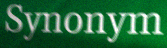
Synonym